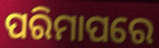
ପରିମାପରେ